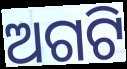
ଅଗଟି